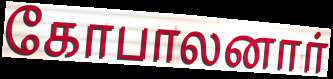
கோபாலனார்